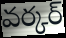
వర్కర్